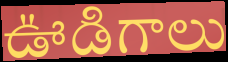
ఊడిగాలు